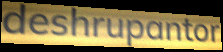
deshrupantor